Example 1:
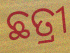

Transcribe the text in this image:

ଛତ୍ରୀ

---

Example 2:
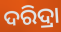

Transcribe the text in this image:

ଦରିଦ୍ରା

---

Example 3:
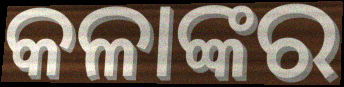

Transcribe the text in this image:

କଳାଙ୍କର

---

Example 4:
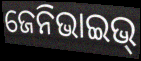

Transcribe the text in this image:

ଜେନିଭାଇଭ୍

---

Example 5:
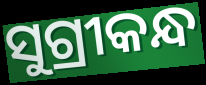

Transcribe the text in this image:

ସୁଗ୍ରୀକନ୍ଧ